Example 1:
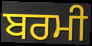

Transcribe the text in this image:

ਬਰਮੀ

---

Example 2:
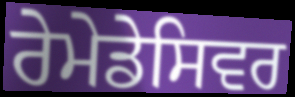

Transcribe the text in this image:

ਰੇਮੇਡੇਸਿਵਰ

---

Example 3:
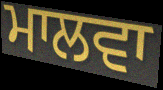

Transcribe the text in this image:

ਮਾਲਵਾ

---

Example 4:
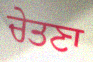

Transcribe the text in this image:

ਚੇਤਣਾ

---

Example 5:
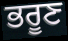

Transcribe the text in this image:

ਭਰੂਣ